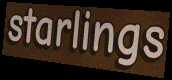
starlings